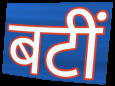
बटीं